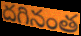
దగినంత